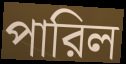
পারিল